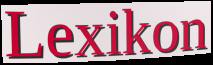
Lexikon